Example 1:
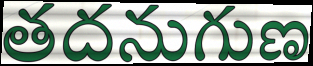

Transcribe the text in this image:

తదనుగుణ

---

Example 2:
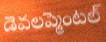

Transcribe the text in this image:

డెవలప్మెంటల్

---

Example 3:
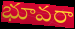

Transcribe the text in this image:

భూవరా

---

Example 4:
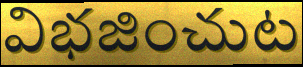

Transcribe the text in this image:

విభజించుట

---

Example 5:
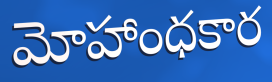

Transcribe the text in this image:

మోహాంధకార